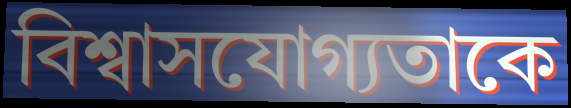
বিশ্বাসযোগ্যতাকে